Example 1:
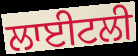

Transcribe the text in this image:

ਲਾਈਟਲੀ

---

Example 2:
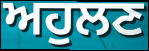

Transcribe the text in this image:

ਅਹੁਲਣ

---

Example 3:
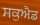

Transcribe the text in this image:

ਸਕੁਐਡ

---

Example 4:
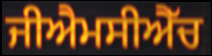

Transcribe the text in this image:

ਜੀਐਮਸੀਐੱਚ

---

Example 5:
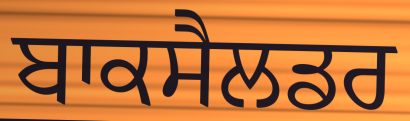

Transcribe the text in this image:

ਬਾਕਸੈਲਡਰ